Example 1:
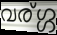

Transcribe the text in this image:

വര്ഗ്ഗ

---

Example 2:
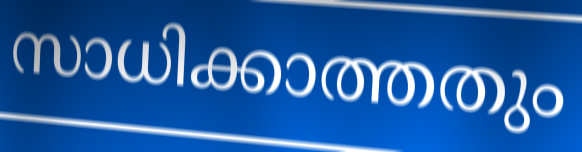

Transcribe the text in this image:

സാധിക്കാത്തതും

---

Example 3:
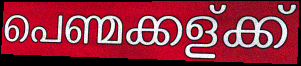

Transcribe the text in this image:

പെണ്മക്കള്ക്ക്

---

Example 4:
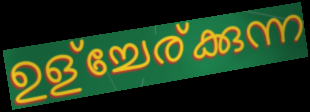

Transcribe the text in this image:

ഉള്ച്ചേര്ക്കുന്ന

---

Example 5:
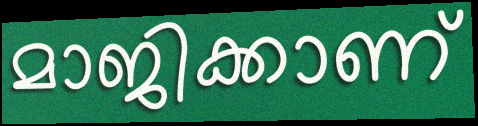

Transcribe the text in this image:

മാജിക്കാണ്